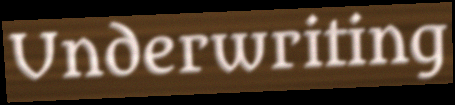
Underwriting